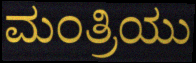
ಮಂತ್ರಿಯು